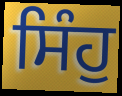
ਸਿੰਹੁ